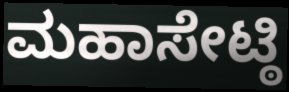
ಮಹಾಸೇಟ್ಠಿ